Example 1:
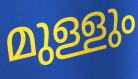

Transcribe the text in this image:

മുള്ളും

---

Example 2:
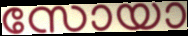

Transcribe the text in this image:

സോയാ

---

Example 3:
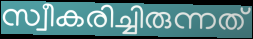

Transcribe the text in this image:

സ്വീകരിച്ചിരുന്നത്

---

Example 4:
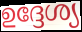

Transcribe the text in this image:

ഉദ്ദേശ്യ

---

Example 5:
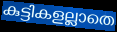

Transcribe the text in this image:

കുട്ടികളല്ലാതെ